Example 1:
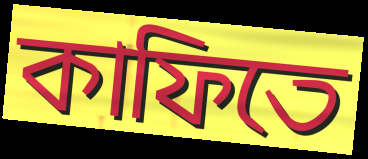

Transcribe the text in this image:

কাফিতে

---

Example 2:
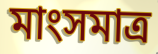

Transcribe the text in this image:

মাংসমাত্র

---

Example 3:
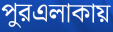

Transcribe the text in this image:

পুরএলাকায়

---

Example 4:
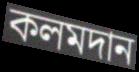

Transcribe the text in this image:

কলমদান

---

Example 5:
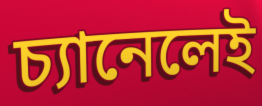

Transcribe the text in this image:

চ্যানেলেই